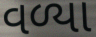
વળ્યા